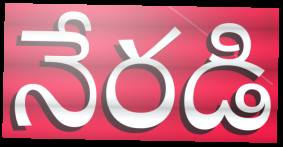
నేరడి